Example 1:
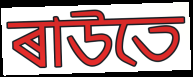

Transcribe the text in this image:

ৰাউতে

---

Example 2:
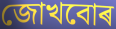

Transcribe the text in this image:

জোখবোৰ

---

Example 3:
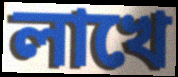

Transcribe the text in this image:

লাখে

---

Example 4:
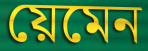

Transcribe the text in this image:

য়েমেন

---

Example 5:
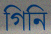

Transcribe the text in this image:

গিনি